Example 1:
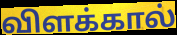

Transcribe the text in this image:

விளக்கால்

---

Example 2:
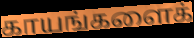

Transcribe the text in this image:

காயங்களைக்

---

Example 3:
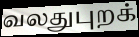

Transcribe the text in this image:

வலதுபுறக்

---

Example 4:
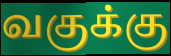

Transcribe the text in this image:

வகுக்கு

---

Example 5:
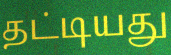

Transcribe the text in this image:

தட்டியது